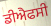
ਡੀਐਫਸੀ